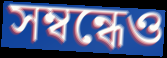
সম্বন্ধেও